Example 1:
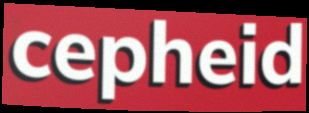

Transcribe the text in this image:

cepheid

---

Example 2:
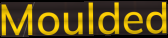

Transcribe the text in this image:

Moulded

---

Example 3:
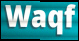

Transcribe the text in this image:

Waqf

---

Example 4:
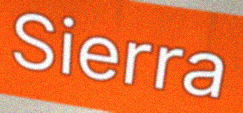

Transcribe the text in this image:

Sierra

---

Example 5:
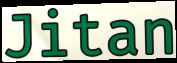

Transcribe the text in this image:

Jitan